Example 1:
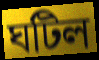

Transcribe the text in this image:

ঘটিল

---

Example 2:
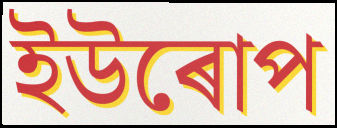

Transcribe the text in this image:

ইউৰোপ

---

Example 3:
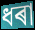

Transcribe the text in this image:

ধৰা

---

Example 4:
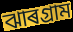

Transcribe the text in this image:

ঝাৰগ্ৰাম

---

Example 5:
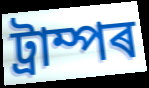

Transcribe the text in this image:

ট্ৰাম্পৰ